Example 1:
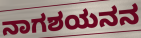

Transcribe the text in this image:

ನಾಗಶಯನನ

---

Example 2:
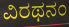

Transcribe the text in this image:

ವಿರಥನಂ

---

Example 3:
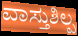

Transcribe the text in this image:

ವಾಸ್ತುಶಿಲ್ಪ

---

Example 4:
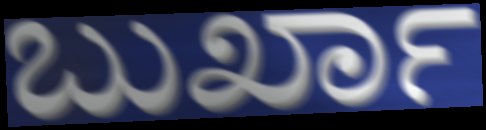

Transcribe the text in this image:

ಬುರ್ಖಾ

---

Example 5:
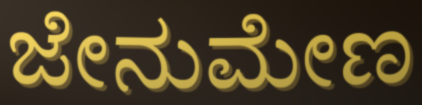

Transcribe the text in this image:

ಜೇನುಮೇಣ